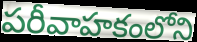
పరీవాహకంలోని